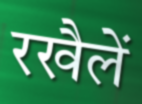
रखैलें